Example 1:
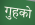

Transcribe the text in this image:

गुहको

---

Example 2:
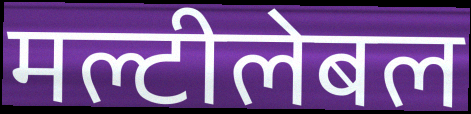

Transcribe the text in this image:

मल्टीलेबल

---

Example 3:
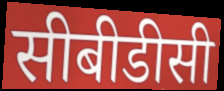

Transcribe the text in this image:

सीबीडीसी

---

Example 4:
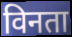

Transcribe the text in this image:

विनता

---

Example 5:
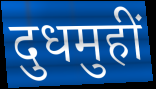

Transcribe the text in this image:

दुधमुहीं